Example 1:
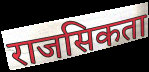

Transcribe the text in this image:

राजसिकता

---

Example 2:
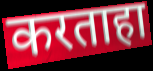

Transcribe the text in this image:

करताहा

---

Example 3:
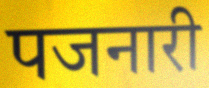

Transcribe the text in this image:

पजनारी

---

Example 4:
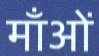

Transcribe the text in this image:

माँओं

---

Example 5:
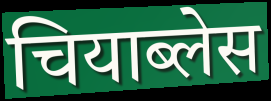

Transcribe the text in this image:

चियाब्लेस